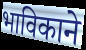
भाविकाने